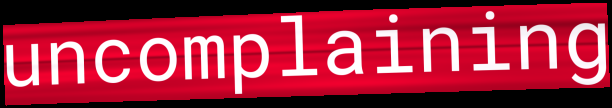
uncomplaining